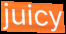
juicy